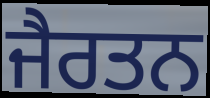
ਜੈਰਤਨ